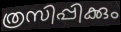
ത്രസിപ്പിക്കും